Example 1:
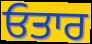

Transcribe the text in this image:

ਓਤਾਰ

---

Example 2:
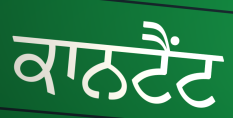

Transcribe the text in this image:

ਕਾਨਟੈਂਟ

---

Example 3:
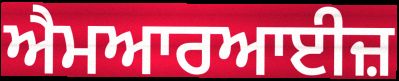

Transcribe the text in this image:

ਐਮਆਰਆਈਜ਼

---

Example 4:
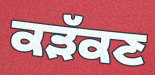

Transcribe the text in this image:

ਕੜੱਕਣ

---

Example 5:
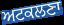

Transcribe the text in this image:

ਅਟਕਲਣਾ